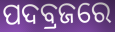
ପଦବ୍ରଜରେ